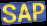
SAP